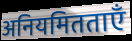
अनियमितताएँ